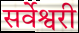
सर्वेश्वरी